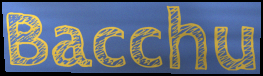
Bacchu